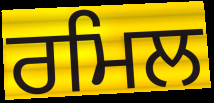
ਰਮਿਲ